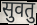
सुवतु